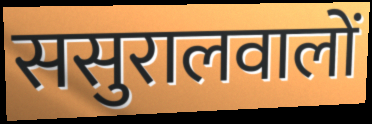
ससुरालवालों